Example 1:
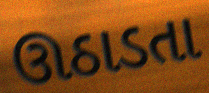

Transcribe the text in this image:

ઊઠાડતા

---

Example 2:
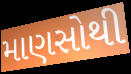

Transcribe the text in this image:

માણસોથી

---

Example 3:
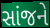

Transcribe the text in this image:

સાંજને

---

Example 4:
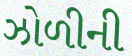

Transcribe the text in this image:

ઝોળીની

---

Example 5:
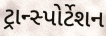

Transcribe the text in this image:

ટ્રાન્સ્પોર્ટેશન